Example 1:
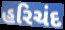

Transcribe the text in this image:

હરિચંદ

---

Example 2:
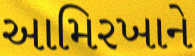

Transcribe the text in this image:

આમિરખાને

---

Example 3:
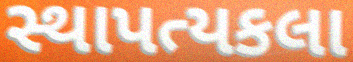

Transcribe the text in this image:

સ્થાપત્યકલા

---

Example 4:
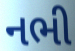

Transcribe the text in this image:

નભી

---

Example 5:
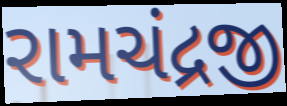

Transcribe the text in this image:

રામચંદ્રજી